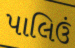
પાલિઉં